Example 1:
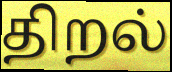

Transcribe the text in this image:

திறல்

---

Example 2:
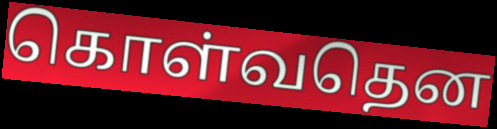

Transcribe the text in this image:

கொள்வதென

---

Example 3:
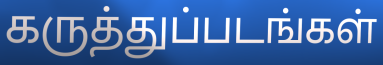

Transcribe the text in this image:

கருத்துப்படங்கள்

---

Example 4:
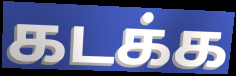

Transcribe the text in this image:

கடக்க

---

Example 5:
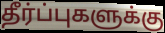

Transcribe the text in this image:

தீர்ப்புகளுக்கு